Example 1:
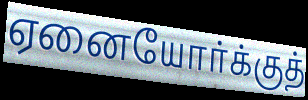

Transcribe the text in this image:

ஏனையோர்க்குத்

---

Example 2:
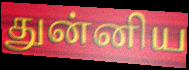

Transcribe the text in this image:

துன்னிய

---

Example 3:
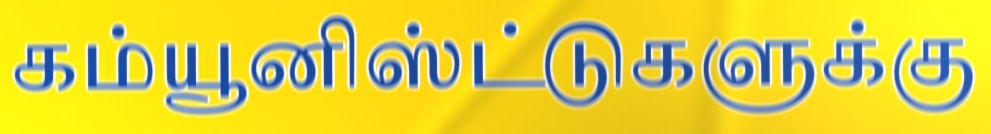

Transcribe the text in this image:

கம்யூனிஸ்ட்டுகளுக்கு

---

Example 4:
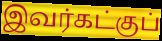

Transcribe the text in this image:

இவர்கட்குப்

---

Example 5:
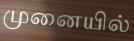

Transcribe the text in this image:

முனையில்